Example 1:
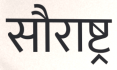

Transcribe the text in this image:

सौराष्ट्र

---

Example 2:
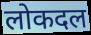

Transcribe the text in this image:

लोकदल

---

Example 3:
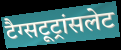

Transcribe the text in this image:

टैग्सटूट्रांसलेट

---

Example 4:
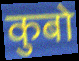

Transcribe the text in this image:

कुबो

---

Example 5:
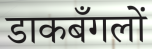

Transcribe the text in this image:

डाकबँगलों